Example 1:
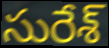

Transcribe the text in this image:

సురేశ్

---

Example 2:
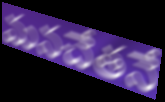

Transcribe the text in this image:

మనచేతనే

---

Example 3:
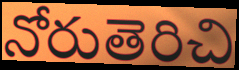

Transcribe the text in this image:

నోరుతెరిచి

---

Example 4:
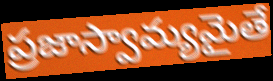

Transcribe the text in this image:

ప్రజాస్వామ్యమైతే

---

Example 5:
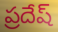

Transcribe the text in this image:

ప్రదేష్